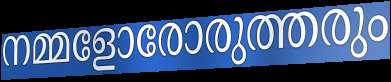
നമ്മളോരോരുത്തരും